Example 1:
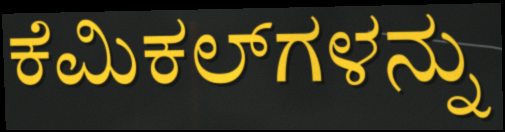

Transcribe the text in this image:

ಕೆಮಿಕಲ್‌ಗಳನ್ನು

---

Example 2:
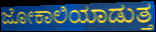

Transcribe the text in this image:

ಜೋಕಾಲಿಯಾಡುತ್ತ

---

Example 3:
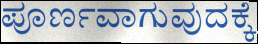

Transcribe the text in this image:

ಪೂರ್ಣವಾಗುವುದಕ್ಕೆ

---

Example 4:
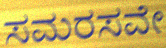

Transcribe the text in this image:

ಸಮರಸವೇ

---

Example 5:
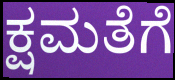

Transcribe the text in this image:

ಕ್ಷಮತೆಗೆ